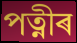
পত্নীৰ